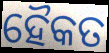
ହୈକତ